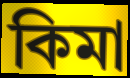
কিমা